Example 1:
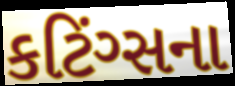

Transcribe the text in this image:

કટિંગ્સના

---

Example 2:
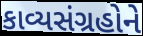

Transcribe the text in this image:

કાવ્યસંગ્રહોને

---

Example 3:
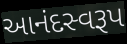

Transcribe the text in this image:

આનંદસ્વરૂપ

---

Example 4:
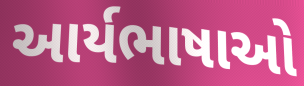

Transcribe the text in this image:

આર્યભાષાઓ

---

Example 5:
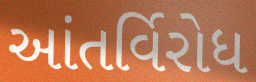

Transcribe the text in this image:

આંતર્વિરોધ